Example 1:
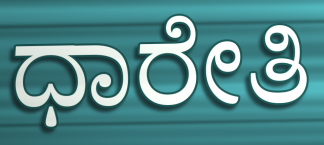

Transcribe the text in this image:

ಧಾರೇತಿ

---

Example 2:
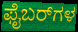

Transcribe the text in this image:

ಫೈಬರ್‌ಗಳ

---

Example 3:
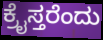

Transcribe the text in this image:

ಕ್ರೈಸ್ತರೆಂದು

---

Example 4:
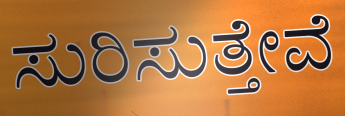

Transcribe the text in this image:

ಸುರಿಸುತ್ತೇವೆ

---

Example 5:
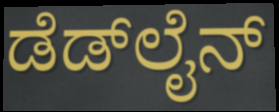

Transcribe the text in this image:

ಡೆಡ್‍ಲೈನ್